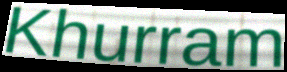
Khurram